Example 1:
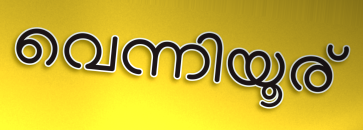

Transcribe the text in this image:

വെന്നിയൂര്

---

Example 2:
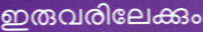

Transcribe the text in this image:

ഇരുവരിലേക്കും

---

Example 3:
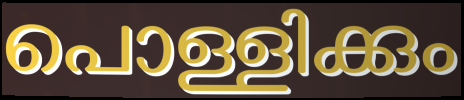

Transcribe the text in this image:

പൊള്ളിക്കും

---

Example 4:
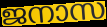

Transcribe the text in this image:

ജനാസ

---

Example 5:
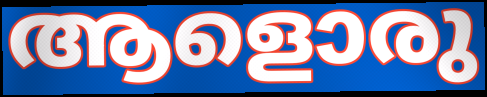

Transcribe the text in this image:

ആളൊരു